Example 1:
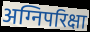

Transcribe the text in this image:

अग्निपरिक्षा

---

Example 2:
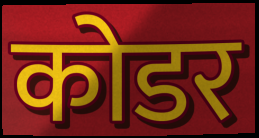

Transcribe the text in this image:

कोडर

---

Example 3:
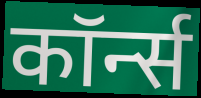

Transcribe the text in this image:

कॉर्न्स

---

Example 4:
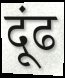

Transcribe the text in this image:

दूंढ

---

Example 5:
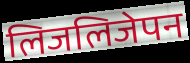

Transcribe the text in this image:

लिजलिजेपन